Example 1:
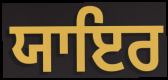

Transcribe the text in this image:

ਯਾਇਰ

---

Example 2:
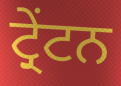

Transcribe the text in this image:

ਟ੍ਰੇਂਟਨ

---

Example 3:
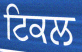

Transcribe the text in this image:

ਟਿਕਲ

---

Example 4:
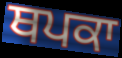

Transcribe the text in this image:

ਥਪਕਾ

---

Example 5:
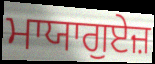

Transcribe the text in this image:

ਮਾਯਾਗੁਏਜ਼